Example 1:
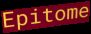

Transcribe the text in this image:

Epitome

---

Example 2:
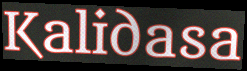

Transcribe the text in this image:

Kalidasa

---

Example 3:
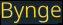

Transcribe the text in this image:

Bynge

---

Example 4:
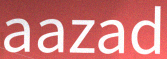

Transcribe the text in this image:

aazad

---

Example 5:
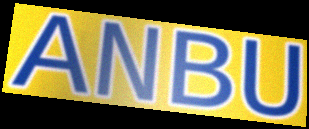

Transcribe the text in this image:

ANBU